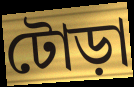
টোড়া